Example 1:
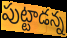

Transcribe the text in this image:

పుట్టాడన్న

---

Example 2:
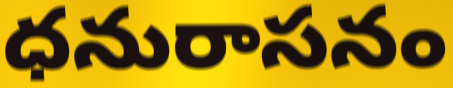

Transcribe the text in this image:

ధనురాసనం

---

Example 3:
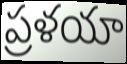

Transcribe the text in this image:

ప్రళయా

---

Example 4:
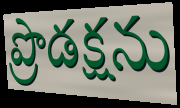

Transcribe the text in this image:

ప్రొడక్షను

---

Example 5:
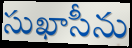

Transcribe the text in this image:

సుఖాసీను